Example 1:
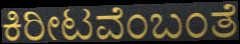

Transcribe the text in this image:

ಕಿರೀಟವೆಂಬಂತೆ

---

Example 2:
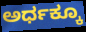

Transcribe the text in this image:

ಅರ್ಧಕ್ಕೂ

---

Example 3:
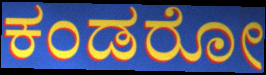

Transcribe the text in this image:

ಕಂಡರೋ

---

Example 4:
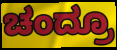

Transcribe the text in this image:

ಚಂದ್ರೂ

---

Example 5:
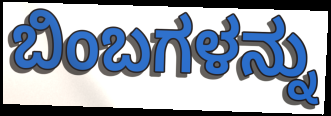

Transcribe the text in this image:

ಬಿಂಬಗಳನ್ನು